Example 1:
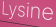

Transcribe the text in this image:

Lysine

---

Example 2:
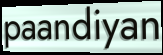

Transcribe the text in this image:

paandiyan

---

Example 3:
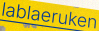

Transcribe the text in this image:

lablaeruken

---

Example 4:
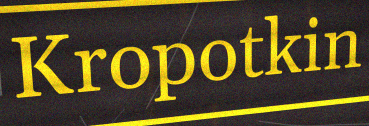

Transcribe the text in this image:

Kropotkin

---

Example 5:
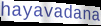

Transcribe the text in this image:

hayavadana